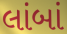
લાંબાં